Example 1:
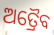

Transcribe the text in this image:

ଅତ୍ରୈବ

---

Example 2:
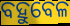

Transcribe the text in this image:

ବହୁବେଳ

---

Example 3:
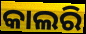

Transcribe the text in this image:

କାଲରି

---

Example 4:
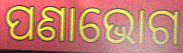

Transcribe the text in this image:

ପଣାଭୋଗ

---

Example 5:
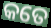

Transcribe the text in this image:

କତେ